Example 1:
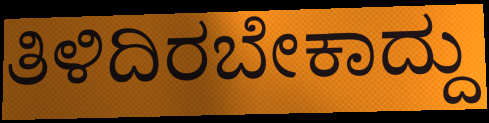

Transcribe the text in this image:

ತಿಳಿದಿರಬೇಕಾದ್ದು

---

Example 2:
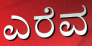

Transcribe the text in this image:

ಎರೆವ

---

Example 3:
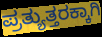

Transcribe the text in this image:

ಪ್ರತ್ಯುತ್ತರಕ್ಕಾಗಿ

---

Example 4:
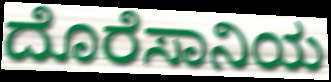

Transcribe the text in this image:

ದೊರೆಸಾನಿಯ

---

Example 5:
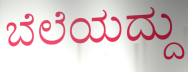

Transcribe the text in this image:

ಬೆಲೆಯದ್ದು